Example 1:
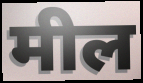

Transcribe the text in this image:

मील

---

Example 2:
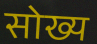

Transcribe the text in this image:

सोख्य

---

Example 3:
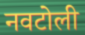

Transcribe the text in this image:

नवटोली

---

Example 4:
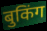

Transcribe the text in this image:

बुकिंग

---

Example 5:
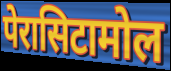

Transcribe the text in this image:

पेरासिटामोल